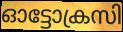
ഓട്ടോക്രസി